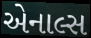
એનાલ્સ